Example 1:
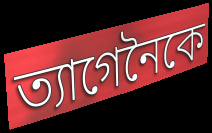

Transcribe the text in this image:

ত্যাগেনৈকে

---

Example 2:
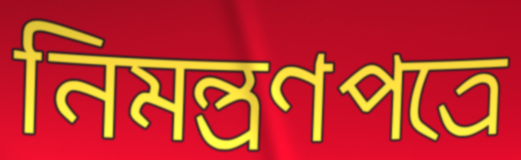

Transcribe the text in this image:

নিমন্ত্রণপত্রে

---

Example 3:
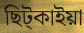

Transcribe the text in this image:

ছিট্কাইয়া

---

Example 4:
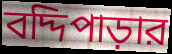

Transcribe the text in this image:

বদ্দিপাড়ার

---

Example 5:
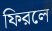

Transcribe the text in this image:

ফিরলে